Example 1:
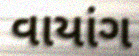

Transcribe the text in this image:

વાયાંગ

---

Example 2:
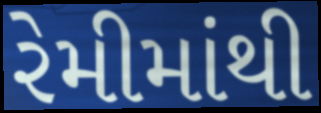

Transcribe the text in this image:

રેમીમાંથી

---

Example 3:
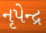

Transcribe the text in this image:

નૃપેન્દ્ર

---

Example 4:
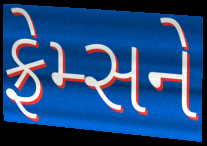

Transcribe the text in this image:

ફ્રેમ્સને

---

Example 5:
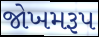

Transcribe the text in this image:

જોખમરૂપ